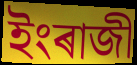
ইংৰাজী